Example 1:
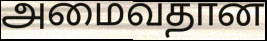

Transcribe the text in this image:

அமைவதான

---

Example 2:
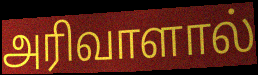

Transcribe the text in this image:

அரிவாளால்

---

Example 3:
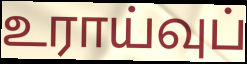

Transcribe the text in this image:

உராய்வுப்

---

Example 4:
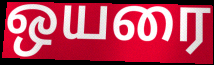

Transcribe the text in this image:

ஒயரை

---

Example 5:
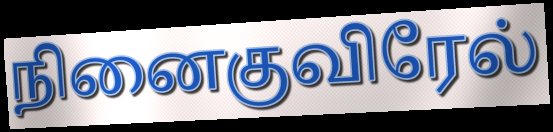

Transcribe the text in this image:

நினைகுவிரேல்